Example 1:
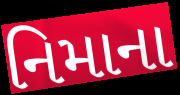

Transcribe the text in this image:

નિમાના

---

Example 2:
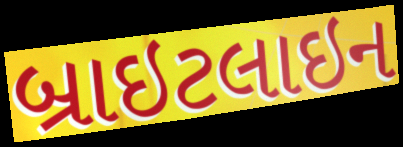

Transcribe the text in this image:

બ્રાઇટલાઇન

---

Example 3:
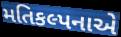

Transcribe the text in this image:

મતિકલ્પનાએ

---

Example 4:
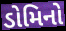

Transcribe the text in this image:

ડોમિનો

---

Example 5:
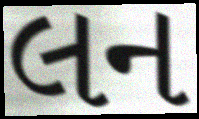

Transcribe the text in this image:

લન